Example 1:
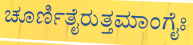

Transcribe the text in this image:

ಚೂರ್ಣಿತೈರುತ್ತಮಾಂಗೈಃ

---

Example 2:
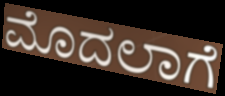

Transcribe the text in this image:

ಮೊದಲಾಗೆ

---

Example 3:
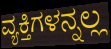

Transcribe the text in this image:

ವ್ಯಕ್ತಿಗಳನ್ನಲ್ಲ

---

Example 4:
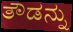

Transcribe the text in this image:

ತೌಡನ್ನು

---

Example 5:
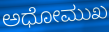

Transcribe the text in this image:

ಅಧೋಮುಖ